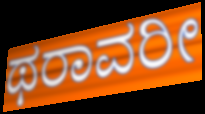
ಥರಾವರೀ